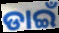
ଡାଇଁ